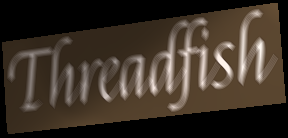
Threadfish